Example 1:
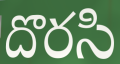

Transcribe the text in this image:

దొరసి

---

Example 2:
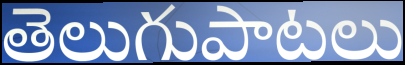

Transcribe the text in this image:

తెలుగుపాటలు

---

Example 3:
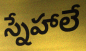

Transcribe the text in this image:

స్నేహాలే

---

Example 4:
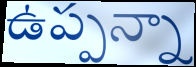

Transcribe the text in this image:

ఉప్పన్నా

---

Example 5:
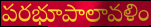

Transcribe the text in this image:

పరభూపాలావళిం